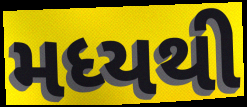
મધ્યથી